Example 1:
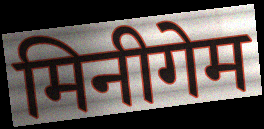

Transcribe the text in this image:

मिनीगेम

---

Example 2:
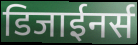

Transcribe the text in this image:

डिजाईनर्स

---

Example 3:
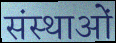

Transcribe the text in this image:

संस्थाओं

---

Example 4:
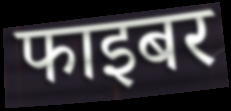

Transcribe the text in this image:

फाइबर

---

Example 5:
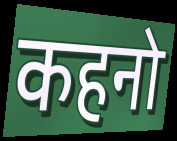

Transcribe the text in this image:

कहनो